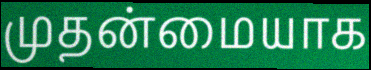
முதன்மையாக